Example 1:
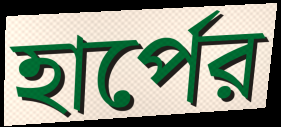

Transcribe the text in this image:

হার্পের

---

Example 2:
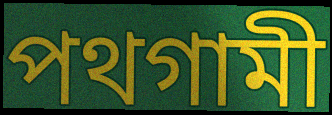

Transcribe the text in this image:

পথগামী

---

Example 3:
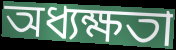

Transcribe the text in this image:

অধ্যক্ষতা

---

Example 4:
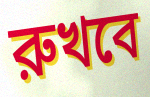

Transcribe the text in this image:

রুখবে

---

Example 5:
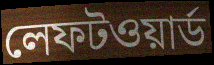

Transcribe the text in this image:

লেফটওয়ার্ড